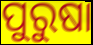
ପୁରୁଷା